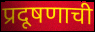
प्रदूषणाची